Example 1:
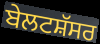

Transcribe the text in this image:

ਬੇਲਟਸ਼ੱਸਰ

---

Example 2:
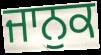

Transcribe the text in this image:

ਜਾਨੁਕ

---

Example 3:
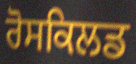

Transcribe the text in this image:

ਰੋਸਕਿਲਡ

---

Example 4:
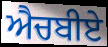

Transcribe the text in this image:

ਐਚਬੀਏ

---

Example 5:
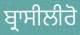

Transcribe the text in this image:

ਬ੍ਰਾਸੀਲੀਰੋ